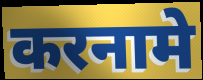
करनामे